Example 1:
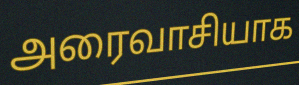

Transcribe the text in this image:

அரைவாசியாக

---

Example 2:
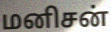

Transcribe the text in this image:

மனிசன்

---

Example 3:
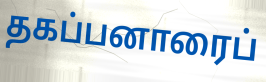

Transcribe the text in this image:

தகப்பனாரைப்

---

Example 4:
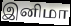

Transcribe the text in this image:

இனிமா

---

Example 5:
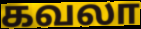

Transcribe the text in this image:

கவலா